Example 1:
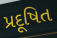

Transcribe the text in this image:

પ્રદૂષિત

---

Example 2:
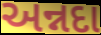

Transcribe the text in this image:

અન્નદા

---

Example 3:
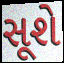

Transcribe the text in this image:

સૂશે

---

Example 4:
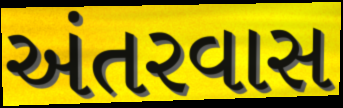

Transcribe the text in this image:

અંતરવાસ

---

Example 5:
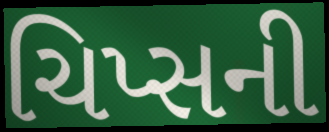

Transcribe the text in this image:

ચિપ્સની